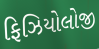
ફિઝિયોલોજી